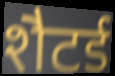
शैटर्ड